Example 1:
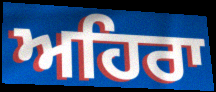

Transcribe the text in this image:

ਅਹਿਰਾ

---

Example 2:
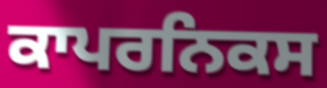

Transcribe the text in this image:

ਕਾਪਰਨਿਕਸ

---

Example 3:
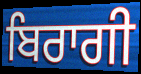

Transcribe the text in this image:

ਬਿਰਾਗੀ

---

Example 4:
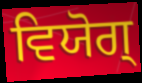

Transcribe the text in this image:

ਵਿਯੋਗ੍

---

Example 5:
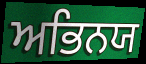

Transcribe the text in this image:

ਅਭਿਨਯ